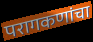
परागकणांचा